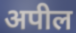
अपील